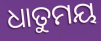
ଧାତୁମୟ